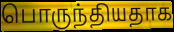
பொருந்தியதாக